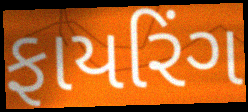
ફાયરિંગ